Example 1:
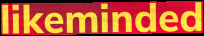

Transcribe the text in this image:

likeminded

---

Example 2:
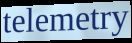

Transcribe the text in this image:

telemetry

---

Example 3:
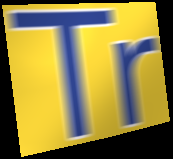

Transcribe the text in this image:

Tr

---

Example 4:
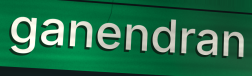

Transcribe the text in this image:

ganendran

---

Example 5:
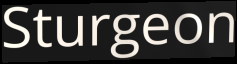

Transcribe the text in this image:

Sturgeon